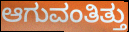
ಆಗುವಂತಿತ್ತು